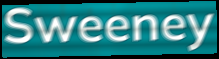
Sweeney